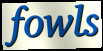
fowls